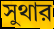
সুথার